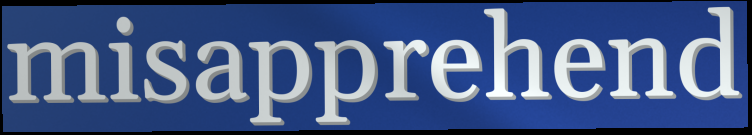
misapprehend